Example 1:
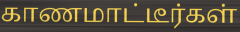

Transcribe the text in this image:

காணமாட்டீர்கள்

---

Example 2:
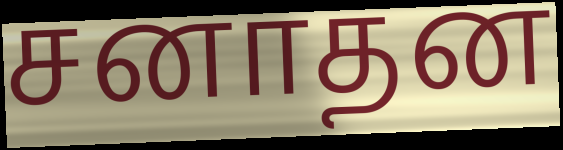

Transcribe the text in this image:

சனாதன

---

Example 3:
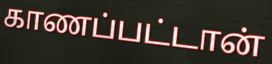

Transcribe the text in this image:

காணப்பட்டான்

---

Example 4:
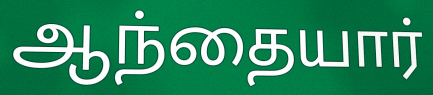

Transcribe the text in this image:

ஆந்தையார்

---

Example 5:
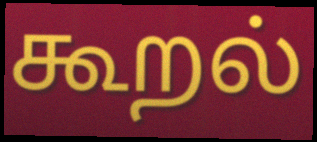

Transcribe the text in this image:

கூறல்